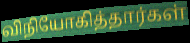
விநியோகித்தார்கள்